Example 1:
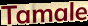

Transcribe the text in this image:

Tamale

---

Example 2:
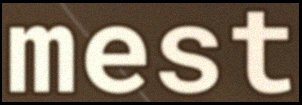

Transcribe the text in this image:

mest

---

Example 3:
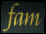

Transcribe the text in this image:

fam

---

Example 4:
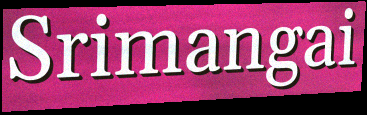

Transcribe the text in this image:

Srimangai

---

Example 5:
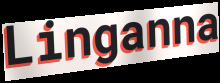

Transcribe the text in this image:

Linganna